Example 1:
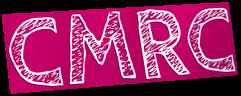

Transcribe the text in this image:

CMRC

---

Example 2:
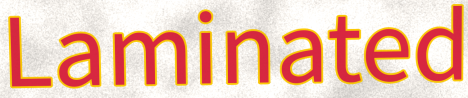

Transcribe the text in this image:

Laminated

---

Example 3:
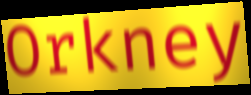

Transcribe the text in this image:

Orkney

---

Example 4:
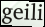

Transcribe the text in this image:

geili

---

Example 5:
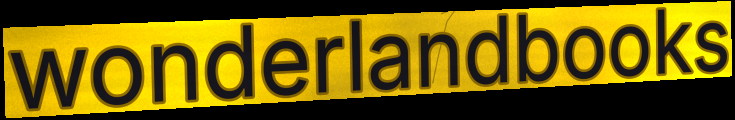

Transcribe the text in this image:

wonderlandbooks